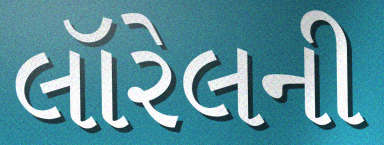
લૉરેલની